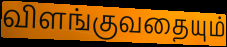
விளங்குவதையும்